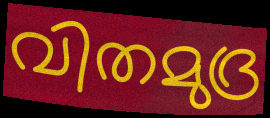
വിതമുദ്ര